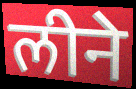
लीने